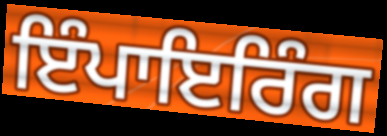
ਇੰਪਾਇਰਿੰਗ